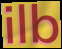
ilb